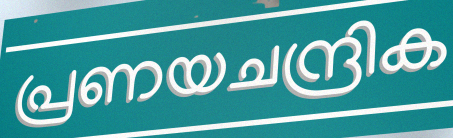
പ്രണയചന്ദ്രിക